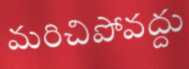
మరిచిపోవద్దు